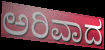
ಅರಿವಾದ